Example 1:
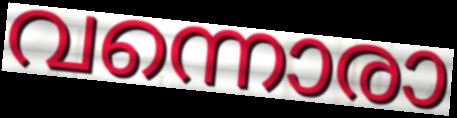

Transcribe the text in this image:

വന്നൊരാ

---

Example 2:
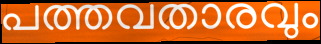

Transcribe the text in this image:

പത്തവതാരവും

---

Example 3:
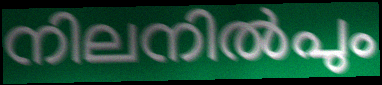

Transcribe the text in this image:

നിലനിൽപും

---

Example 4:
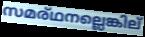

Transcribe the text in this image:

സമര്ഥനല്ലെങ്കില്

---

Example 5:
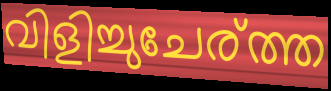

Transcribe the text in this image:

വിളിച്ചുചേര്ത്ത